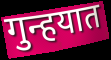
गुन्हयात